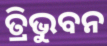
ତ୍ରିଭୁବନ